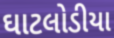
ઘાટલોડીયા